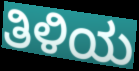
ತಿಳಿಯ